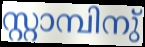
സ്റ്റാമ്പിനു്